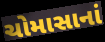
ચોમાસાનાં